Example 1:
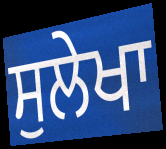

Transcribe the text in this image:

ਸੁਲੇਖਾ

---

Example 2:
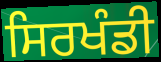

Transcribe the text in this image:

ਸਿਰਖੰਡੀ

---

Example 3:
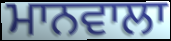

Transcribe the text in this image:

ਮਾਨਵਾਲਾ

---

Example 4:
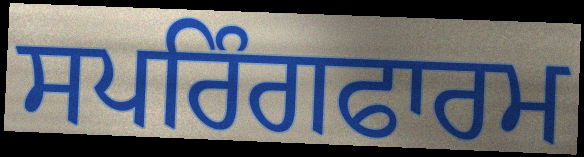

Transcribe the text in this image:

ਸਪਰਿੰਗਫਾਰਮ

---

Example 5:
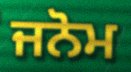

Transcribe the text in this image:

ਜਨੋਮ